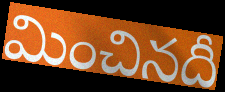
మించినదీ